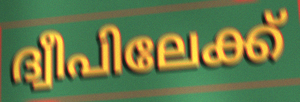
ദ്വീപിലേക്ക്